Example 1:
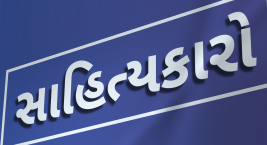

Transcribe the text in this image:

સાહિત્યકારો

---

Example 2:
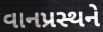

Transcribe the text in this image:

વાનપ્રસ્થને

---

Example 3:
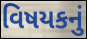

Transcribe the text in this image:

વિષયકનું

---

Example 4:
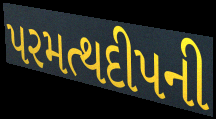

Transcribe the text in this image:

પરમત્થદીપની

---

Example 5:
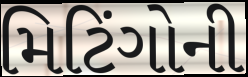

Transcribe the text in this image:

મિટિંગોની